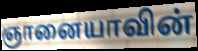
ஞானையாவின்